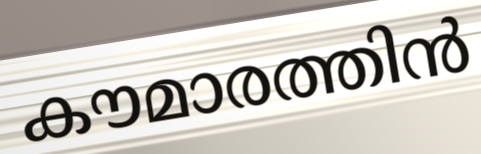
കൗമാരത്തിൻ